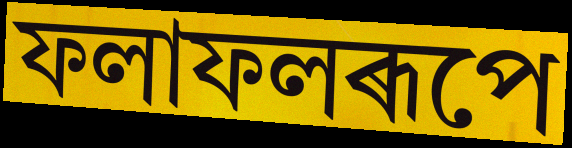
ফলাফলৰূপে